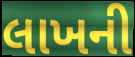
લાખની